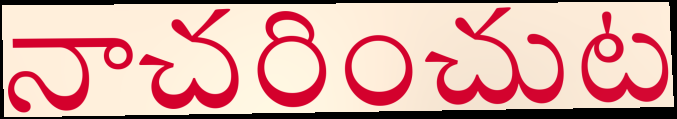
నాచరించుట